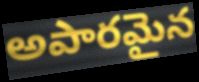
అపారమైన